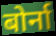
बोर्ना